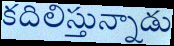
కదిలిస్తున్నాడు